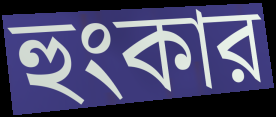
হুংকার